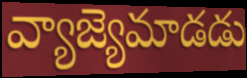
వ్యాజ్యెమాడడు